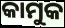
କାମୁକ